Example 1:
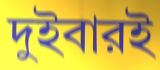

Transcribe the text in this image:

দুইবারই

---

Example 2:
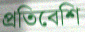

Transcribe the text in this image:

প্রতিবেশি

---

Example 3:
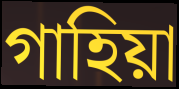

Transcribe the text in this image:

গাহিয়া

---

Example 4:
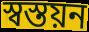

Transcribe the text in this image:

স্বস্তয়ন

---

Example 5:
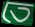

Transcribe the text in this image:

তে